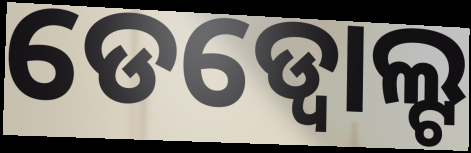
ଡେଡ୍ବୋଲ୍ଟ